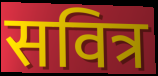
सवित्र